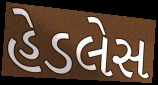
હેડલેસ